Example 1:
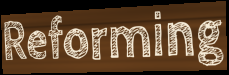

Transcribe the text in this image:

Reforming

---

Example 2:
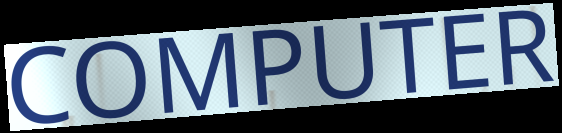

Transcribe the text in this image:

COMPUTER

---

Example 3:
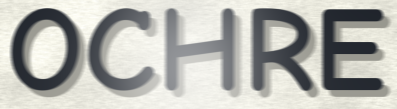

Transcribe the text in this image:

OCHRE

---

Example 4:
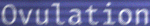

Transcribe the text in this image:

Ovulation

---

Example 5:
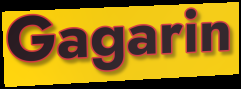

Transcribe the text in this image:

Gagarin